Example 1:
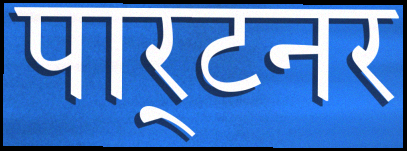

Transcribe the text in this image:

पार्टनर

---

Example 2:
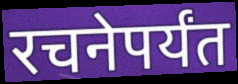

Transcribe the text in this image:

रचनेपर्यंत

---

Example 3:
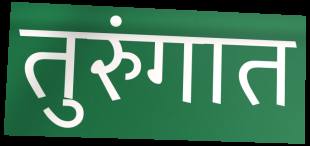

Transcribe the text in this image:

तुरुंगात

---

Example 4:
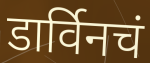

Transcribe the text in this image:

डार्विनचं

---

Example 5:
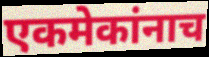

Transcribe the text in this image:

एकमेकांनाच